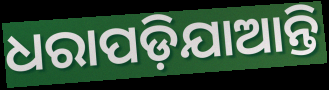
ଧରାପଡ଼ିଯାଆନ୍ତି